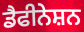
ਡੈਫੀਨੇਸ਼ਨ